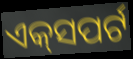
ଏକ୍‌ସପର୍ଟ